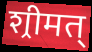
श्रीमत्